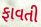
ફાવતી